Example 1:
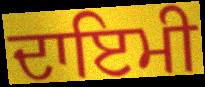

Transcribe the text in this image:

ਦਾਇਮੀ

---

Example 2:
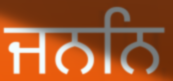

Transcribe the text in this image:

ਜਨਨਿ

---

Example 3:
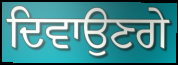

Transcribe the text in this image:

ਦਿਵਾਉਣਗੇ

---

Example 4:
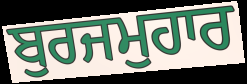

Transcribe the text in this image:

ਬੁਰਜਮੁਹਾਰ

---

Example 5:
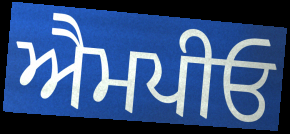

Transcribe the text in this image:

ਐਮਪੀਓ